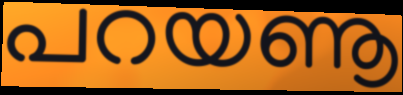
പറയണൂ